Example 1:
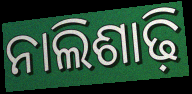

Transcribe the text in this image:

ନାଲିଶାଢ଼ି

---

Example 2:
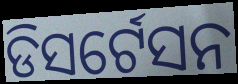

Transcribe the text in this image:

ଡିସର୍ଟେସନ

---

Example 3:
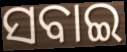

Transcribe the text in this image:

ସବାଇ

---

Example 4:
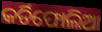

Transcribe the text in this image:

କର୍ଡିଫୋଲିଆ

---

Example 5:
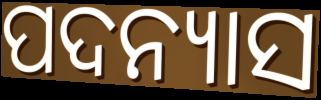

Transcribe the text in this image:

ପଦନ୍ୟାସ